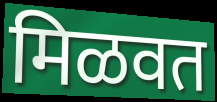
मिळवत